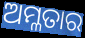
ଅମ୍ଳତାର